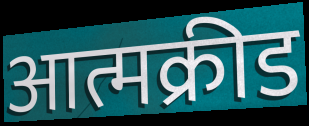
आत्मक्रीड